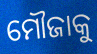
ମୌଜାକୁ